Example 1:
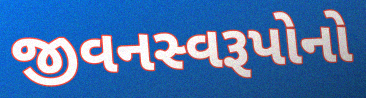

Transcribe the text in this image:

જીવનસ્વરૂપોનો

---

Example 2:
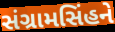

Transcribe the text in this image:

સંગ્રામસિંહને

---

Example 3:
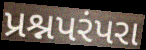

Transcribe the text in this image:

પ્રશ્નપરંપરા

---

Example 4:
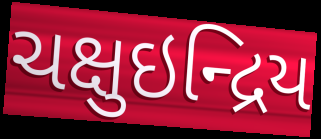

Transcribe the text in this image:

ચક્ષુઇન્દ્રિય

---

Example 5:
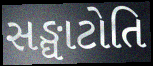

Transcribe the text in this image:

સઙ્ઘાટોતિ